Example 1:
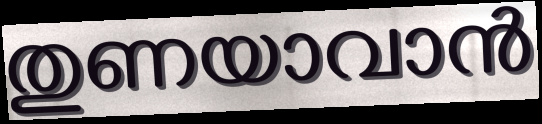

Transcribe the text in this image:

തുണയാവാൻ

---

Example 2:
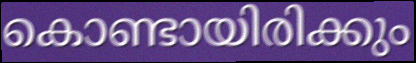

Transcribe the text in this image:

കൊണ്ടായിരിക്കും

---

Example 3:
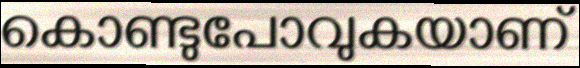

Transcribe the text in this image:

കൊണ്ടുപോവുകയാണ്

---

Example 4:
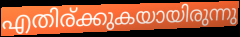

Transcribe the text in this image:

എതിര്ക്കുകയായിരുന്നു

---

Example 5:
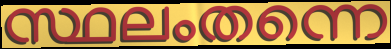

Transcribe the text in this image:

സ്ഥലംതന്നെ